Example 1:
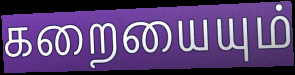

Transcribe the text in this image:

கறையையும்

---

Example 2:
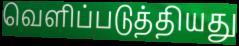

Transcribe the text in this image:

வெளிப்படுத்தியது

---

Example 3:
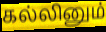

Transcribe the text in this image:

கல்லினும்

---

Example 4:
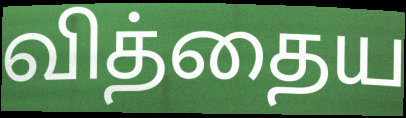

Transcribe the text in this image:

வித்தைய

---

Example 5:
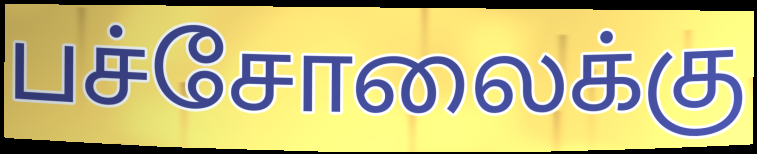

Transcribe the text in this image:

பச்சோலைக்கு